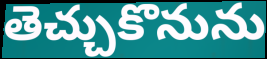
తెచ్చుకొనును